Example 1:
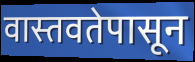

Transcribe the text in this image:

वास्तवतेपासून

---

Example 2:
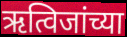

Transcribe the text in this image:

ऋत्विजांच्या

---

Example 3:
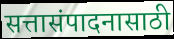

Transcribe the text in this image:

सत्तासंपादनासाठी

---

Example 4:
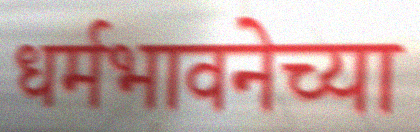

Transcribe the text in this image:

धर्मभावनेच्या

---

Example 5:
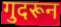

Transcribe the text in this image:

गुदरून